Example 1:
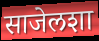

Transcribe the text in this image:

साजेलशा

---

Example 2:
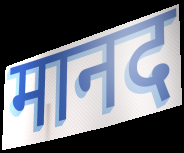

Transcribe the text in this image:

मानद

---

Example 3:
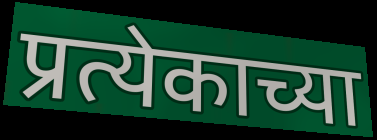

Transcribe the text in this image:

प्रत्येकाच्या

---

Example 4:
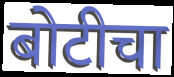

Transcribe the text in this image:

बोटीचा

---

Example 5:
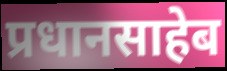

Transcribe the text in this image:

प्रधानसाहेब